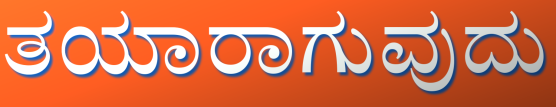
ತಯಾರಾಗುವುದು